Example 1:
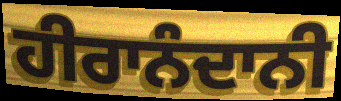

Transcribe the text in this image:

ਹੀਰਾਨੰਦਾਨੀ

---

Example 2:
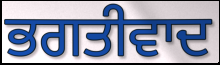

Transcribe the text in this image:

ਭਗਤੀਵਾਦ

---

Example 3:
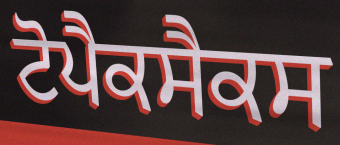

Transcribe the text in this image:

ਟੋਪੈਕਸੈਕਸ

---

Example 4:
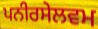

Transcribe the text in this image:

ਪਨੀਰਸੇਲਵਮ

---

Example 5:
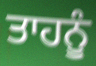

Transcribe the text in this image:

ਤਾਹਨੂੰ